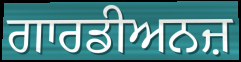
ਗਾਰਡੀਅਨਜ਼